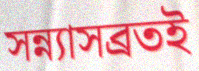
সন্ন্যাসব্রতই